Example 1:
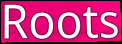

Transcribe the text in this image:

Roots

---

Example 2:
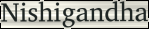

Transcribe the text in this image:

Nishigandha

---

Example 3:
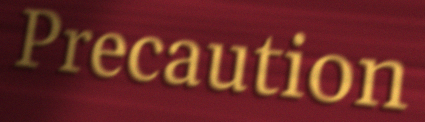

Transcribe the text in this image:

Precaution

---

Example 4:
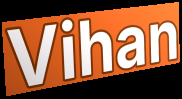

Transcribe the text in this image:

Vihan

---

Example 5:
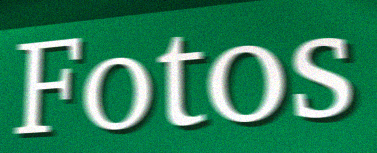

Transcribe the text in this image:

Fotos